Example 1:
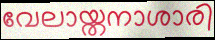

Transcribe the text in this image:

വേലായ്തനാശാരി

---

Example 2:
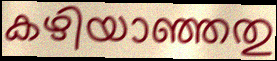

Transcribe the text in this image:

കഴിയാഞ്ഞതു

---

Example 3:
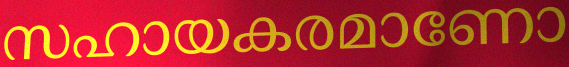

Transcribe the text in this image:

സഹായകരമാണോ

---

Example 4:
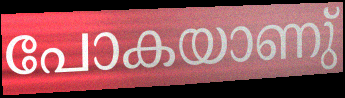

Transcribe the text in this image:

പോകയാണു്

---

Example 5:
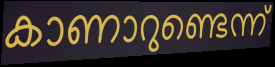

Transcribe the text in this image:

കാണാറുണ്ടെന്ന്